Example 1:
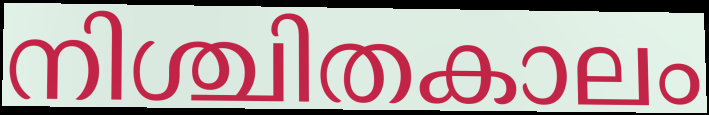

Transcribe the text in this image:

നിശ്ചിതകാലം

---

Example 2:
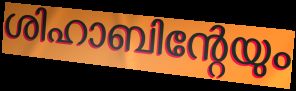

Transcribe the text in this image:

ശിഹാബിന്റേയും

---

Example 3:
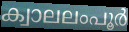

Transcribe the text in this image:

ക്വാലലംപൂർ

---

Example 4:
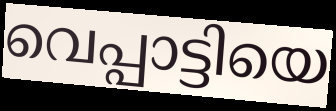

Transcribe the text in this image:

വെപ്പാട്ടിയെ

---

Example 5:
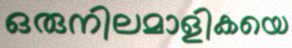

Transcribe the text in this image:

ഒരുനിലമാളികയെ